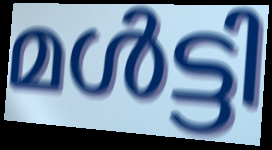
മൾട്ടി